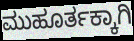
ಮುಹೂರ್ತಕ್ಕಾಗಿ